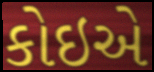
કોઇએ